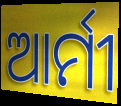
ଆର୍ମୀ